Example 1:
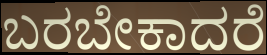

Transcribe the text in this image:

ಬರಬೇಕಾದರೆ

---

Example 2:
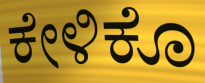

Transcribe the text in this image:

ಕೇಳಿಕೊ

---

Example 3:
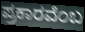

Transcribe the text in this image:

ಪ್ರಕಾರವೆಂಬ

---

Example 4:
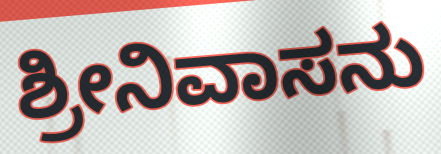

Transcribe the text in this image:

ಶ್ರೀನಿವಾಸನು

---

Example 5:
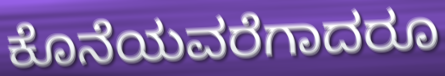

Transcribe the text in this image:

ಕೊನೆಯವರೆಗಾದರೂ